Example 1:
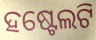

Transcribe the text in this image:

ହଷ୍ଟେଲଟି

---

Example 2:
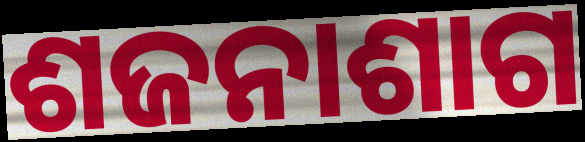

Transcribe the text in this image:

ଶଜନାଶାଗ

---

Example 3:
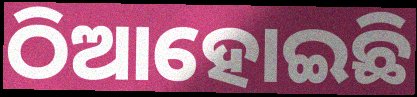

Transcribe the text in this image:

ଠିଆହୋଇଛି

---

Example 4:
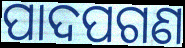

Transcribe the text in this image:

ପାଦପଗଣ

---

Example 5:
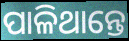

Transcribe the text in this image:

ପାଳିଥାନ୍ତେ